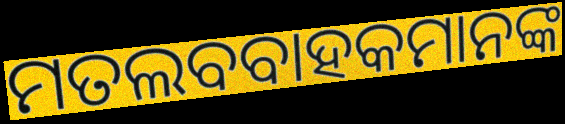
ମତଲବବାହକମାନଙ୍କ